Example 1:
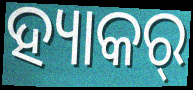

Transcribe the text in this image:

ହ୍ୟାକର୍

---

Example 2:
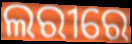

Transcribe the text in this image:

ଲରୀରେ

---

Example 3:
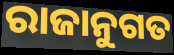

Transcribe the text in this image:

ରାଜାନୁଗତ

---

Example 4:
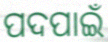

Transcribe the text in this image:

ପଦପାଇଁ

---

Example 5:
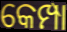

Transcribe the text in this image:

କେମ୍ପା